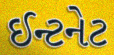
ઈન્ટનેટ